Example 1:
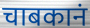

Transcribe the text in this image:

चाबकानं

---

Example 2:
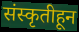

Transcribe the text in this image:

संस्कृतीहून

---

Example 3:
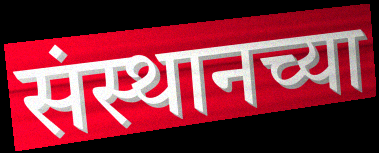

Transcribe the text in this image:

संस्थानच्या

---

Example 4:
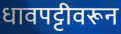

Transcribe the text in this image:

धावपट्टीवरून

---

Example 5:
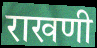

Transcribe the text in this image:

राखणी